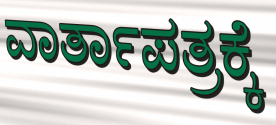
ವಾರ್ತಾಪತ್ರಕ್ಕೆ